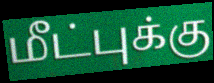
மீட்புக்கு